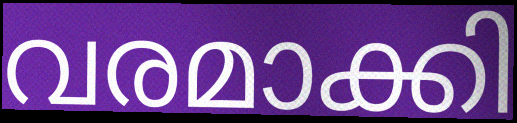
വരമാക്കി